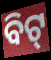
ବିଟ୍